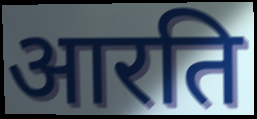
आरति